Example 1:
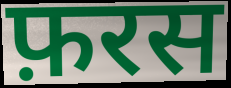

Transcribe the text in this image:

फ़रस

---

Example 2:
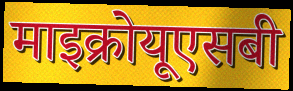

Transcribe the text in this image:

माइक्रोयूएसबी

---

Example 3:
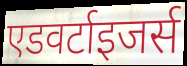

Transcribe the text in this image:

एडवर्टाइजर्स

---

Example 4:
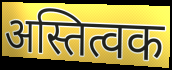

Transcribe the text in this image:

अस्तित्वक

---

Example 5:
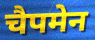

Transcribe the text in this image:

चैपमेन